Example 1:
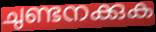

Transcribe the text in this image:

ചുണ്ടനക്കുക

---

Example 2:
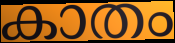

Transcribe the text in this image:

കാതം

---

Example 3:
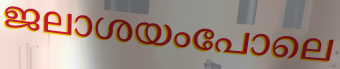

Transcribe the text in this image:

ജലാശയംപോലെ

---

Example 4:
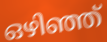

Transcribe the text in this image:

ഒഴിഞ്ഞ്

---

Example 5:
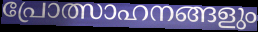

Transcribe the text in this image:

പ്രോത്സാഹനങ്ങളും